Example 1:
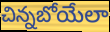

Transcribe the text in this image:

చిన్నబోయేలా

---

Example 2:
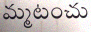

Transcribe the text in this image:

మ్మటంచు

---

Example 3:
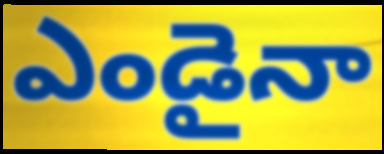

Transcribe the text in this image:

ఎండైనా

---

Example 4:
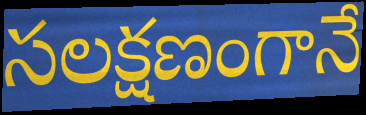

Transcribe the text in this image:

సలక్షణంగానే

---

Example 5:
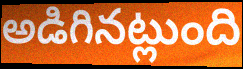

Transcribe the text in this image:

అడిగినట్లుంది